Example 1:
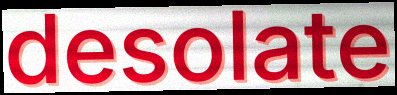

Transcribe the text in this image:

desolate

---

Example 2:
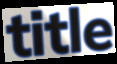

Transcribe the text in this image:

title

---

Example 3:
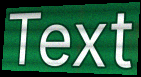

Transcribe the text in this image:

Text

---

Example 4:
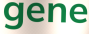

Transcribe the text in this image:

gene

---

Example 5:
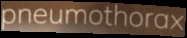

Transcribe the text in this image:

pneumothorax